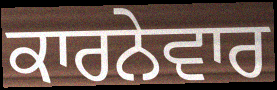
ਕਾਰਨੇਵਾਰ